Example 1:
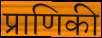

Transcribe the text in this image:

प्राणिकी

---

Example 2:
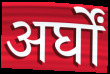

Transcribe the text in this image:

अर्घों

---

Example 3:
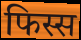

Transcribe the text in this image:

फिस्स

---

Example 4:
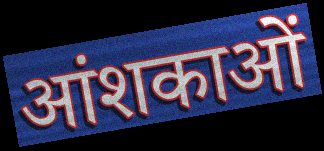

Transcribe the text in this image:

आंशकाओं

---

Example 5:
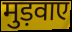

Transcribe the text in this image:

मुड़वाए